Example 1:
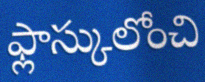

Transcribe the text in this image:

ఫ్లాస్కులోంచి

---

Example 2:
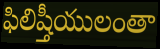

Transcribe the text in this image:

ఫిలిష్తీయులంతా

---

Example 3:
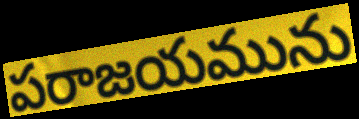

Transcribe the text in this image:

పరాజయమును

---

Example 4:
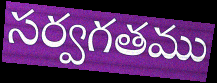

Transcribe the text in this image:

సర్వగతము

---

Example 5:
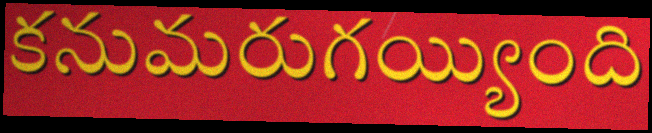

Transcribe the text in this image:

కనుమరుగయ్యింది